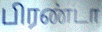
பிரண்டா